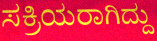
ಸಕ್ರಿಯರಾಗಿದ್ದು